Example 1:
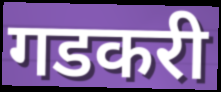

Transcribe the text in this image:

गडकरी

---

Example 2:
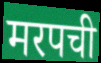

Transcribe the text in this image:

मरपची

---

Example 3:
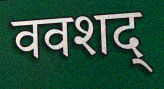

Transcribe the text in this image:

ववशद्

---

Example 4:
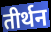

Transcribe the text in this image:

तीर्थन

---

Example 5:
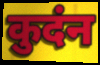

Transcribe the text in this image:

कुदंन